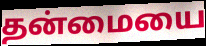
தன்மையை